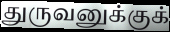
துருவனுக்குக்